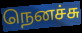
நெனச்சு